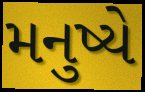
મનુષ્યે